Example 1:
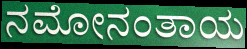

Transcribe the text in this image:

ನಮೋನಂತಾಯ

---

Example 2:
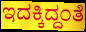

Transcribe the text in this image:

ಇದಕ್ಕಿದ್ದಂತೆ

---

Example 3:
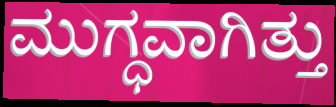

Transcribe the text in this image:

ಮುಗ್ಧವಾಗಿತ್ತು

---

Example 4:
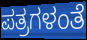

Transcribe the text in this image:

ಪತ್ರಗಳಂತೆ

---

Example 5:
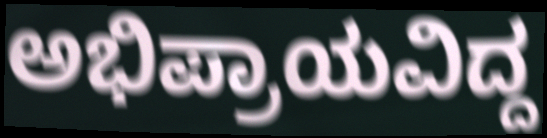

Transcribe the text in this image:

ಅಭಿಪ್ರಾಯವಿದ್ದ